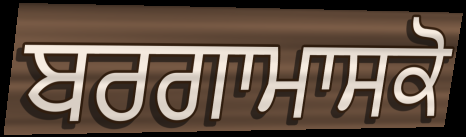
ਬਰਗਾਮਾਸਕੋ